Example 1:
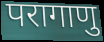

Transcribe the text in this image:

परागाणु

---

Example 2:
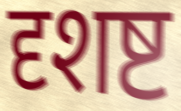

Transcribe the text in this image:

दृशष्ट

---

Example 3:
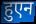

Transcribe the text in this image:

हुएन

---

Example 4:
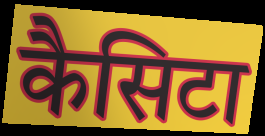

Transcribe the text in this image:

कैसिटा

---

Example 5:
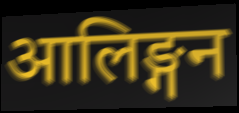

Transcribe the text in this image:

आलिङ्गन